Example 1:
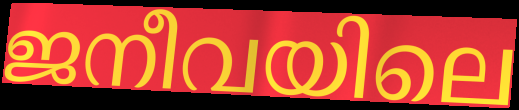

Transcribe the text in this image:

ജനീവയിലെ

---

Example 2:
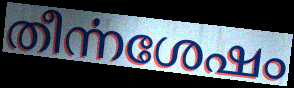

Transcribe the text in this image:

തീൎന്നശേഷം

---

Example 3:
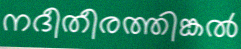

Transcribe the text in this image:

നദീതീരത്തിങ്കൽ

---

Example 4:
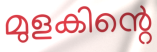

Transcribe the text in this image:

മുളകിന്റെ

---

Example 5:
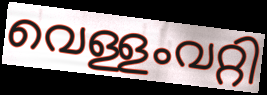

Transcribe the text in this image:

വെള്ളംവറ്റി